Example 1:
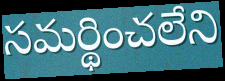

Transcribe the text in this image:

సమర్థించలేని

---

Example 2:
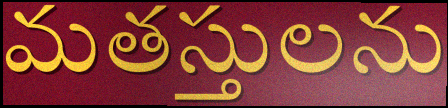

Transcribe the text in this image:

మతస్తులను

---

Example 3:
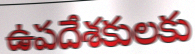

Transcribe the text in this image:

ఉపదేశకులకు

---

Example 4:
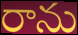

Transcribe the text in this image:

రాను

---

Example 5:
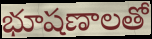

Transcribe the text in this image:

భూషణాలతో